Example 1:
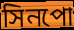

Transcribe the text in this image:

সিনপো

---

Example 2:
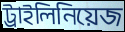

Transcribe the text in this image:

ট্রাইলিনিয়েজ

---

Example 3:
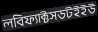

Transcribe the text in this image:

লবিফ্যাক্টসডটইইউ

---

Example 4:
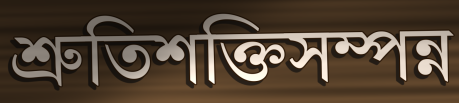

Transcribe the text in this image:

শ্রুতিশক্তিসম্পন্ন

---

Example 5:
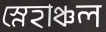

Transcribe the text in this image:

স্নেহাঞ্চল